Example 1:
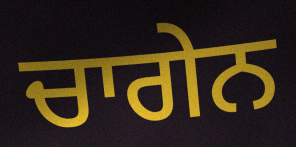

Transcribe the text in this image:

ਚਾਗੇਨ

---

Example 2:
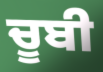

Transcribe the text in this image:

ਚੂਬੀ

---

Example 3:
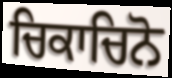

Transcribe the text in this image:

ਚਿਕਾਚਿਨੋ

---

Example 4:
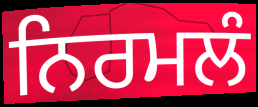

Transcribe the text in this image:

ਨਿਰਮਲੰ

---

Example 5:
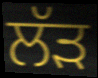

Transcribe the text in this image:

ਲੱੜ